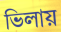
ভিলায়